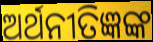
ଅର୍ଥନୀତିଜ୍ଞଙ୍କ